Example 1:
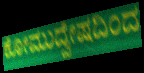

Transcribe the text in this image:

ಕೋಮುದ್ವೇಷದಿಂದ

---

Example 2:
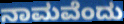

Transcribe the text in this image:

ನಾಮವೆಂದು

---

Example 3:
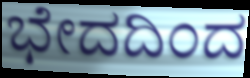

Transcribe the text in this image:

ಭೇದದಿಂದ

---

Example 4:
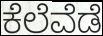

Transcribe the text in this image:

ಕೆಲೆವೆಡೆ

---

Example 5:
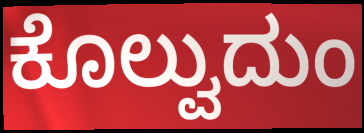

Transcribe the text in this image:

ಕೊಲ್ವುದುಂ